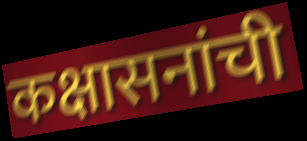
कक्षासनांची